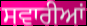
ਸਵਾਰੀਆਂ